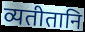
व्यतीतानि